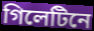
গিলেটিনে